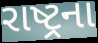
રાષ્ટ્રના